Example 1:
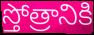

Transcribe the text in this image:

స్తోత్రానికి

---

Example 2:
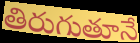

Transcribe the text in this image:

తిరుగుతూనే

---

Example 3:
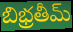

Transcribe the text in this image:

బిభ్రతీమ్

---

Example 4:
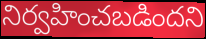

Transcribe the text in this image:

నిర్వహించబడిందని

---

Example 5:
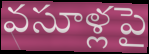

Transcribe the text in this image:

వసూళ్లపై